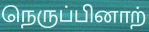
நெருப்பினாற்